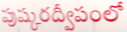
పుష్కరద్వీపంలో